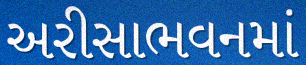
અરીસાભવનમાં